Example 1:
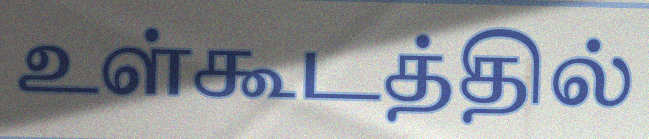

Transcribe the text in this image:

உள்கூடத்தில்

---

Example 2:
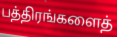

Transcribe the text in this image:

பத்திரங்களைத்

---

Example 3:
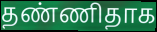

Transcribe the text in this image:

தண்ணிதாக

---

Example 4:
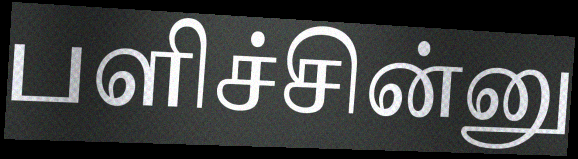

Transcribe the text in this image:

பளிச்சின்னு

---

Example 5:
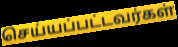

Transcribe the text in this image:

செய்யப்பட்டவர்கள்